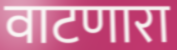
वाटणारा